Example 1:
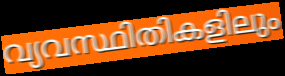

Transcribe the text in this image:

വ്യവസ്ഥിതികളിലും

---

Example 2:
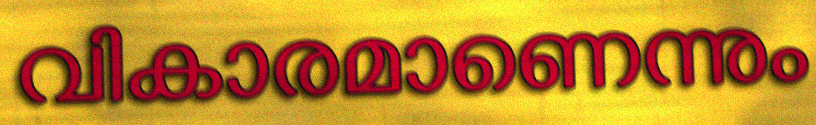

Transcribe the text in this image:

വികാരമാണെന്നും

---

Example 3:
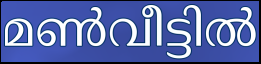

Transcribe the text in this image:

മൺവീട്ടിൽ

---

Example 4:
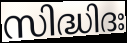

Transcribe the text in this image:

സിദ്ധിദഃ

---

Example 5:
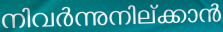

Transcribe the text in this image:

നിവർന്നുനില്ക്കാൻ